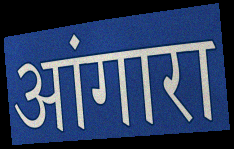
आंगारा